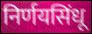
निर्णयसिंधू